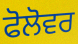
ਫੋਲੋਵਰ